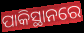
ପାକିସ୍ଥାନରେ